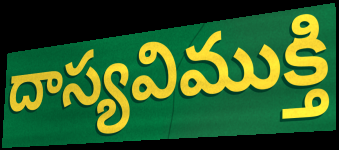
దాస్యవిముక్తి